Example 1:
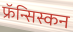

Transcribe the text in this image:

फ्रॅन्सिस्कन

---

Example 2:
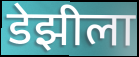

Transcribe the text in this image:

डेझीला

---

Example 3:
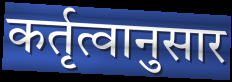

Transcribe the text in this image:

कर्तृत्वानुसार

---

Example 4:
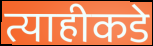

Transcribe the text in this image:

त्याहीकडे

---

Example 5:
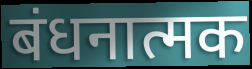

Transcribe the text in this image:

बंधनात्मक